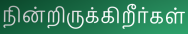
நின்றிருக்கிறீர்கள்